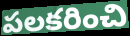
పలకరించి